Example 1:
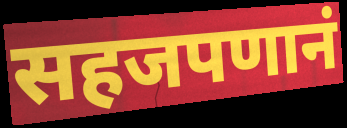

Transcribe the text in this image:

सहजपणानं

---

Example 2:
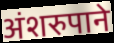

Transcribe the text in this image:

अंशरुपाने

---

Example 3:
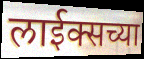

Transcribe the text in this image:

लाईक्सच्या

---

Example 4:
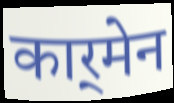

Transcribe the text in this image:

कार्मेन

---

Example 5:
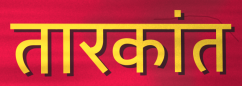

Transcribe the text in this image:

तारकांत